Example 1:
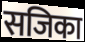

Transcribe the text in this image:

सजिका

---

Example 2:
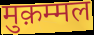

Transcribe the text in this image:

मुक़म्मल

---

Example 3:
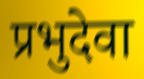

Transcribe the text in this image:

प्रभुदेवा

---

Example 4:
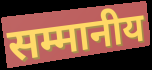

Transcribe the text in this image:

सम्मानीय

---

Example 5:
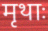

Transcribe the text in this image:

मृथाः